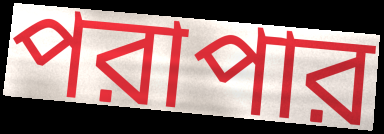
পরাপার